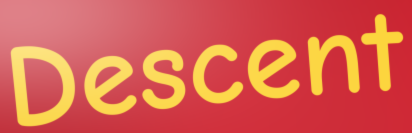
Descent